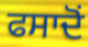
ਫਸਾਦੋਂ